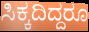
ಸಿಕ್ಕದಿದ್ದರೂ